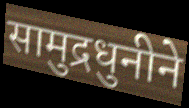
सामुद्रधुनीने